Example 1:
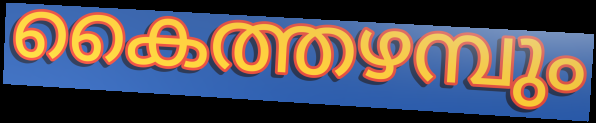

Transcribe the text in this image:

കൈത്തഴമ്പും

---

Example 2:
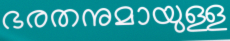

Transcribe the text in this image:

ഭരതനുമായുള്ള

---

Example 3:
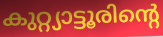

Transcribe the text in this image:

കുറ്റ്യാട്ടൂരിന്റെ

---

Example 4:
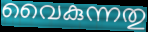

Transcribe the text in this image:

വൈകുന്നതു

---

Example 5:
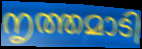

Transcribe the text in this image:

നൃത്തമാടി